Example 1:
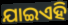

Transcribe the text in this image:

ଯାଇଏହି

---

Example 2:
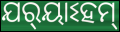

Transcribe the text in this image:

ଯର୍‌ୟାଽହମ୍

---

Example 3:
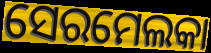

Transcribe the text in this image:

ସେରମେଲକା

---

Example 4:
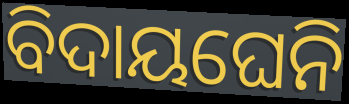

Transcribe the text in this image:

ବିଦାୟଘେନି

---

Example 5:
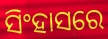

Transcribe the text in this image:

ସିଂହାସରେ